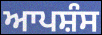
ਆਪਸ਼ੰਸ